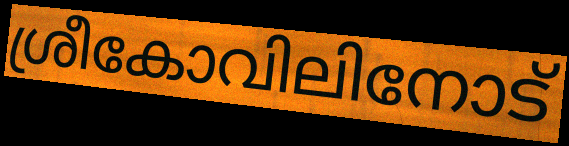
ശ്രീകോവിലിനോട്